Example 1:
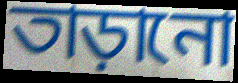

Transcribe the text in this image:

তাড়ানো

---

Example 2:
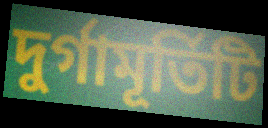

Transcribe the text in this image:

দুর্গামূর্তিটি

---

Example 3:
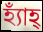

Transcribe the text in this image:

হ্যাঁহ্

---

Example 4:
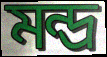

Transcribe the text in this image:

মন্দ্র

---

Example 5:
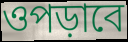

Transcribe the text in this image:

ওপড়াবে